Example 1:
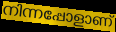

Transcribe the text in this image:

നിന്നപ്പോളാണ്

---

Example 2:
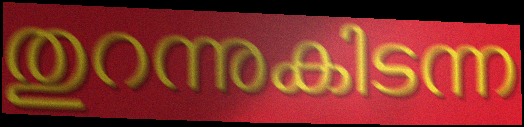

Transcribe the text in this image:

തുറന്നുകിടന്ന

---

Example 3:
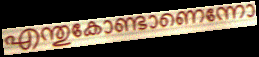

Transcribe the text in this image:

എന്തുകോണ്ടാണെന്നോ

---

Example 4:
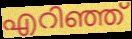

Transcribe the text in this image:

എറിഞ്ഞ്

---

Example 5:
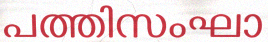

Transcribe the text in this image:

പത്തിസംഘാ